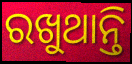
ରଖୁଥାନ୍ତି